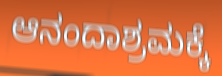
ಆನಂದಾಶ್ರಮಕ್ಕೆ